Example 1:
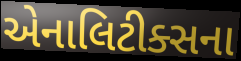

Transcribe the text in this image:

એનાલિટીક્સના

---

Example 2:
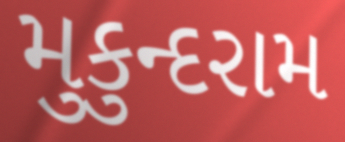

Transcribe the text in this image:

મુકુન્દરામ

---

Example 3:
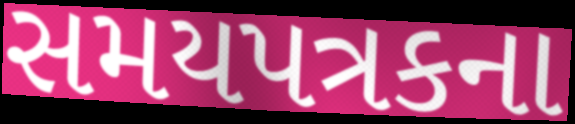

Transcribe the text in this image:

સમયપત્રકના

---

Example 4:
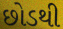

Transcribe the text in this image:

છોડથી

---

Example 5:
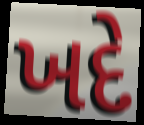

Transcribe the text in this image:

ખદે